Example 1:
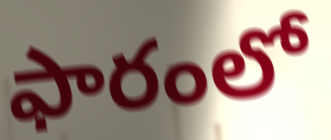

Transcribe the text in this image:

ఫారంలో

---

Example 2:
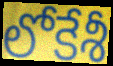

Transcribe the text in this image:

లోకేశీ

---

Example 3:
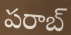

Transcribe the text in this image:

పరాబ్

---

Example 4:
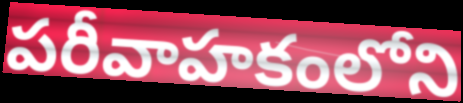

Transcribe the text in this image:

పరీవాహకంలోని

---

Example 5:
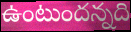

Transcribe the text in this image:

ఉంటుందన్నది